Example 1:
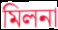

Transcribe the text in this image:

মিলনা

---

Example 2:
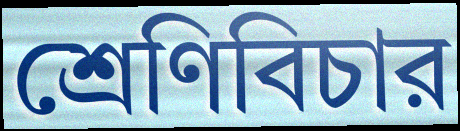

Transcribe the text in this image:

শ্রেণিবিচার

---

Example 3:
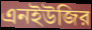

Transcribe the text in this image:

এনইউজির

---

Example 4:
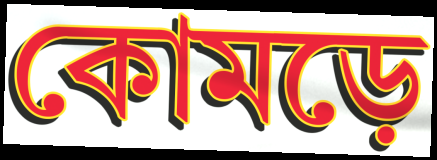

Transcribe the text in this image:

কোমড়ে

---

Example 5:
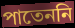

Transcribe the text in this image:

পাতেননি